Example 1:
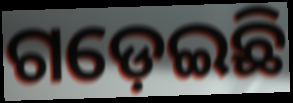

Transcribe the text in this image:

ଗଡ଼େଇଛି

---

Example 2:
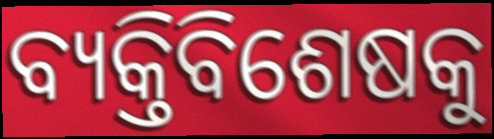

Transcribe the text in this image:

ବ୍ୟକ୍ତିବିଶେଷକୁ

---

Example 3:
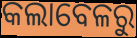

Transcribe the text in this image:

କଲାବେଳରୁ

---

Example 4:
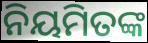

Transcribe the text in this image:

ନିୟମିତଙ୍କ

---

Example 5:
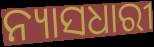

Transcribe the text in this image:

ନ୍ୟାସଧାରୀ